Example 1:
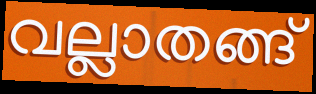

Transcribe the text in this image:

വല്ലാതങ്ങ്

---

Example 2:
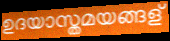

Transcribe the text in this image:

ഉദയാസ്തമയങ്ങള്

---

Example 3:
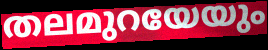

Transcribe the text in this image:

തലമുറയേയും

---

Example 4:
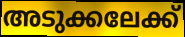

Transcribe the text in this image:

അടുക്കലേക്ക്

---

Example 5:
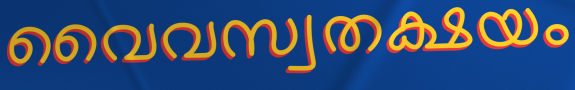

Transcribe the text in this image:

വൈവസ്വതക്ഷയം